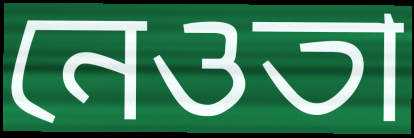
নেওতা